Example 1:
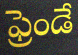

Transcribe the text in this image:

ఫ్రెండే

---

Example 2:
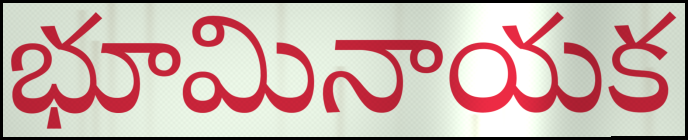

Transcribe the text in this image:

భూమినాయక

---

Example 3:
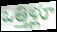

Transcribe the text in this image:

ఒత్తిళ్లూ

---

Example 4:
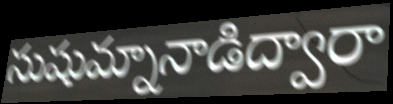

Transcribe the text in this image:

సుషుమ్నానాడిద్వారా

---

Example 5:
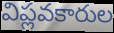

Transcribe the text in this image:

విప్లవకారుల